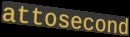
attosecond